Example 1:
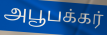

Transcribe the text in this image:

அபூபக்கர்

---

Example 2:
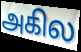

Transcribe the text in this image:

அகில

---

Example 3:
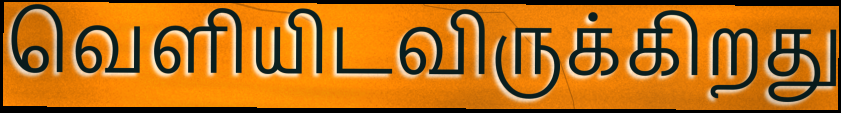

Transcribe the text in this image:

வெளியிடவிருக்கிறது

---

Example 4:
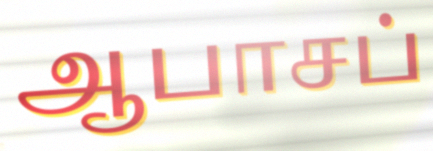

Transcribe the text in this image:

ஆபாசப்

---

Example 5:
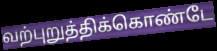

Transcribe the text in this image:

வற்புறுத்திக்கொண்டே